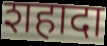
शहादा